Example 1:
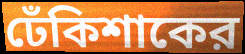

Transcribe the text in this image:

ঢেঁকিশাকের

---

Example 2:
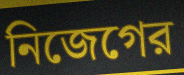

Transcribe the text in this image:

নিজেগের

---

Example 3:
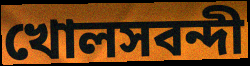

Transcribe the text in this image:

খোলসবন্দী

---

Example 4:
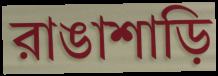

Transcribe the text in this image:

রাঙাশাড়ি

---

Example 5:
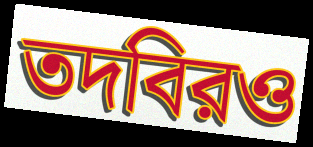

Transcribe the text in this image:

তদবিরও